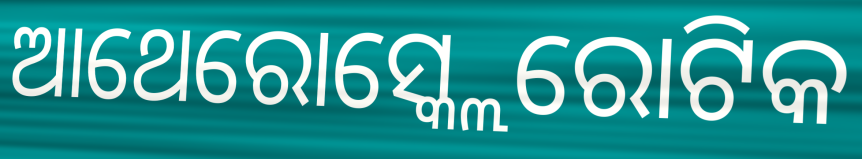
ଆଥେରୋସ୍କ୍ଲେରୋଟିକ